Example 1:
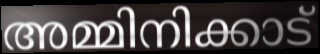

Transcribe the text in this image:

അമ്മിനിക്കാട്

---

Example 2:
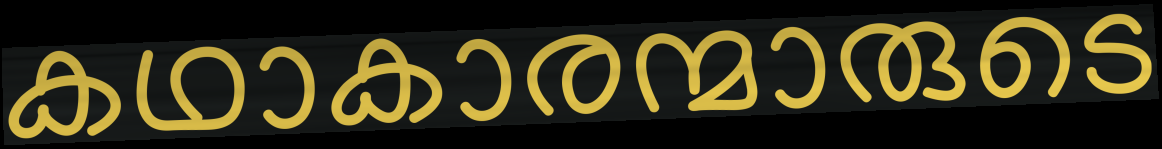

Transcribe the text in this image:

കഥാകാരന്മാരുടെ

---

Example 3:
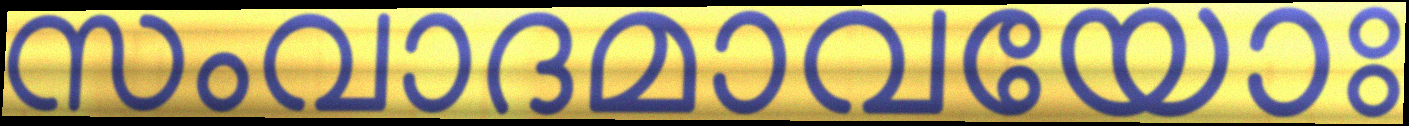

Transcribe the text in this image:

സംവാദമാവയോഃ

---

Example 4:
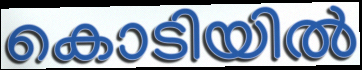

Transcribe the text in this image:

കൊടിയിൽ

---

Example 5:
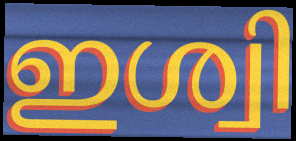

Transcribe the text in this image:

ഇശ്വി